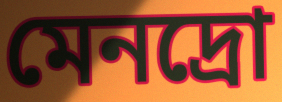
মেনদ্রো